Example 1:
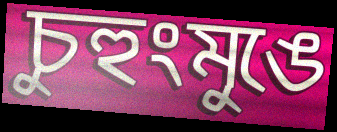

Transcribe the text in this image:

চুহুংমুঙে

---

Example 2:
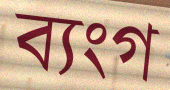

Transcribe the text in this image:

ব্যংগ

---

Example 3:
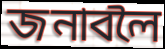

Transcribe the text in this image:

জনাবলৈ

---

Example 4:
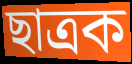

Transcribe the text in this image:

ছাত্ৰক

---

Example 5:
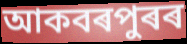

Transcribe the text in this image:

আকবৰপুৰৰ